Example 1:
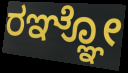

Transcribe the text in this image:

ರಞ್ಞೋ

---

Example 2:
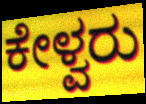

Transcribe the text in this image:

ಕೇಳ್ವರು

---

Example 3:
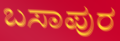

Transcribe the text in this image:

ಬಸಾಪುರ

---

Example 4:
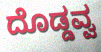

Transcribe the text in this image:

ದೊಡ್ಡವ್ವ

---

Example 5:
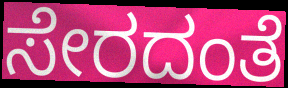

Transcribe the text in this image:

ಸೇರದಂತೆ